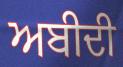
ਅਬੀਦੀ